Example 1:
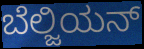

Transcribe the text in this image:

ಬೆಲ್ಜಿಯನ್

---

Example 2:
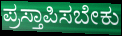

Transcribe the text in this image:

ಪ್ರಸ್ತಾಪಿಸಬೇಕು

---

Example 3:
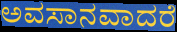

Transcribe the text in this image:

ಅವಸಾನವಾದರೆ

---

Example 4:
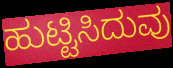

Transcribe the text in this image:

ಹುಟ್ಟಿಸಿದುವು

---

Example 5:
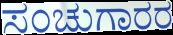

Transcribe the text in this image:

ಸಂಚುಗಾರರ